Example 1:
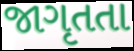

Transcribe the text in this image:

જાગૃતતા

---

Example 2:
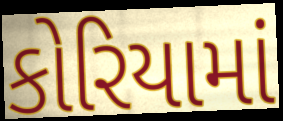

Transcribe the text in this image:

કોરિયામાં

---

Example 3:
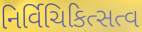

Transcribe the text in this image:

નિર્વિચિકિત્સત્વ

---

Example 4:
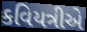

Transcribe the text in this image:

કવિયત્રીએ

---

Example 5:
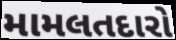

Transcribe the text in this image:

મામલતદારો